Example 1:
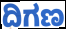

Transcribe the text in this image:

ದಿಗಣ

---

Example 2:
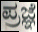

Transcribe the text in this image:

ಪ್ರಜ್ಞೆ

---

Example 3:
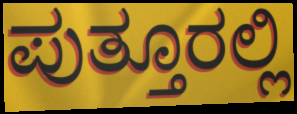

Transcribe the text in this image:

ಪುತ್ತೂರಲ್ಲಿ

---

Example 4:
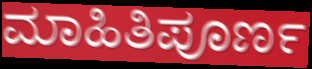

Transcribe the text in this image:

ಮಾಹಿತಿಪೂರ್ಣ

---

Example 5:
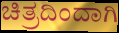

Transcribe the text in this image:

ಚಿತ್ರದಿಂದಾಗಿ